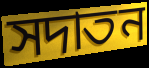
সদাতন